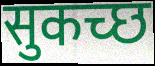
सुकच्छ